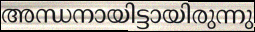
അന്ധനായിട്ടായിരുന്നു